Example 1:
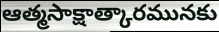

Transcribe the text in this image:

ఆత్మసాక్షాత్కారమునకు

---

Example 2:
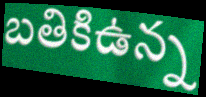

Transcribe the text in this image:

బతికిఉన్న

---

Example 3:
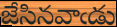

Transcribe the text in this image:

జేసినవాఁడు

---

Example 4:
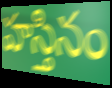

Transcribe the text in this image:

హస్తినం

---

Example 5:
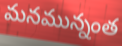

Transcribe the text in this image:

మనమున్నంత